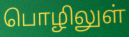
பொழிலுள்